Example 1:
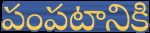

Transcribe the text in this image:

పంపటానికి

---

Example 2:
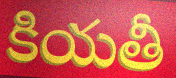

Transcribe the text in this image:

కియతీ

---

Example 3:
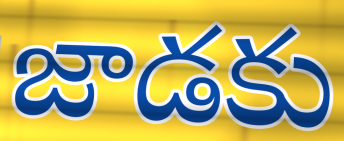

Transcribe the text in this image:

జాడకు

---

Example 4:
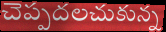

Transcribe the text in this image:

చెప్పదలచుకున్న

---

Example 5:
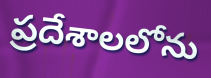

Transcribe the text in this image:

ప్రదేశాలలోను